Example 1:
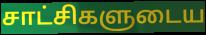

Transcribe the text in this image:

சாட்சிகளுடைய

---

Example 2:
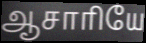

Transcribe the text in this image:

ஆசாரியே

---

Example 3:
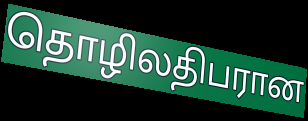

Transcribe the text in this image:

தொழிலதிபரான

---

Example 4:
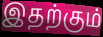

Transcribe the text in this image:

இதற்கும்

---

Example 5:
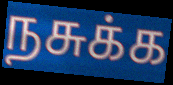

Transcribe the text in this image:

நசுக்க